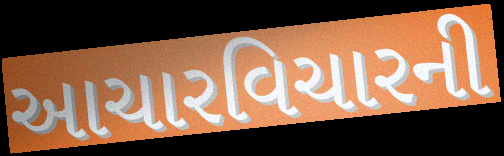
આચારવિચારની